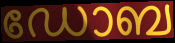
ഡോബ